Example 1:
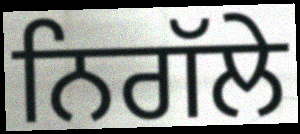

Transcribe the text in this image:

ਨਿਗੱਲੇ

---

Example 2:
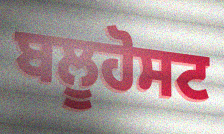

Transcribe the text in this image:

ਬਲੂਹੋਸਟ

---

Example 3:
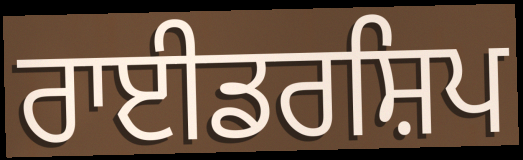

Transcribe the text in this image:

ਰਾਈਡਰਸ਼ਿਪ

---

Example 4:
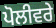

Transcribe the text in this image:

ਪੋਲੀਵਰੇ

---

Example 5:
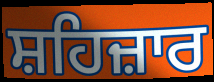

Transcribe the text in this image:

ਸ਼ਹਿਜ਼ਾਰ